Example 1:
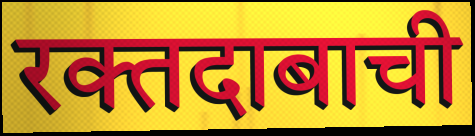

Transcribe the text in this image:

रक्तदाबाची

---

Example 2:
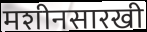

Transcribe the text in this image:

मशीनसारखी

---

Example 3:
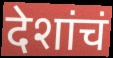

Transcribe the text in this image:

देशांचं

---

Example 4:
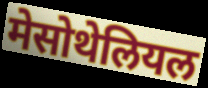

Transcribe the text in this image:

मेसोथेलियल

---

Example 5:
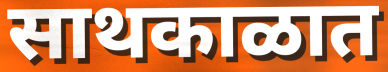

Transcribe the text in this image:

साथकाळात